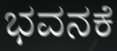
ಭವನಕೆ